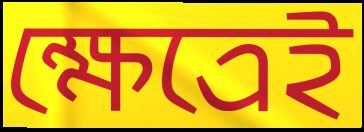
ক্ষেত্ৰেই